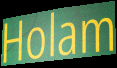
Holam